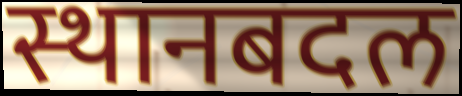
स्थानबदल